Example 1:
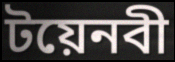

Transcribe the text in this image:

টয়েনবী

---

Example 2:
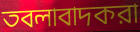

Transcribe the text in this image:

তবলাবাদকরা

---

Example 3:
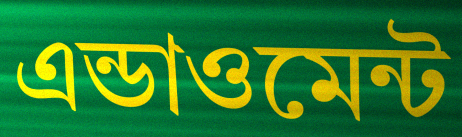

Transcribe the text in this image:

এন্ডাওমেন্ট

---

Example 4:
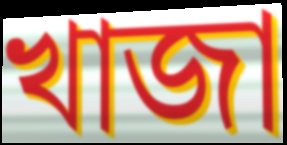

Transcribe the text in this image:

খাজা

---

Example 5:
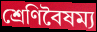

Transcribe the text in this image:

শ্রেণিবৈষম্য